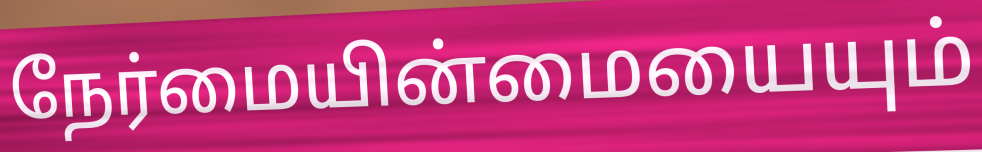
நேர்மையின்மையையும்